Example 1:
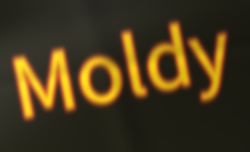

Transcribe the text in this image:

Moldy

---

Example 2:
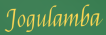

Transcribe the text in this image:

Jogulamba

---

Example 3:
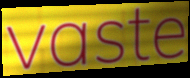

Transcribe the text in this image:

vaste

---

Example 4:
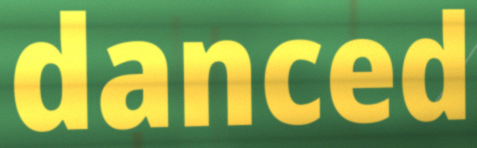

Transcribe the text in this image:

danced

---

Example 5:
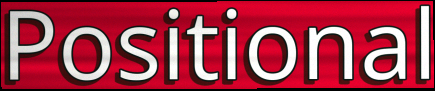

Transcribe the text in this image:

Positional